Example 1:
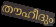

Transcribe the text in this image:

തൗഹീദും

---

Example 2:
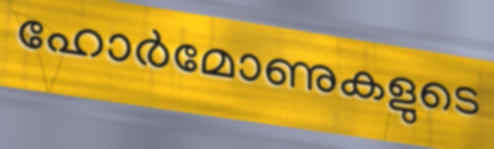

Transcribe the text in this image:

ഹോർമോണുകളുടെ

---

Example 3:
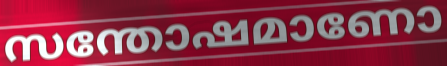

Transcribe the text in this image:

സന്തോഷമാണോ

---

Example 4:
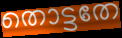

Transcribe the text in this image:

തൊട്ടതേ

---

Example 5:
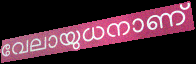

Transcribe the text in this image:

വേലായുധനാണ്